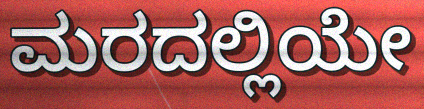
ಮರದಲ್ಲಿಯೇ